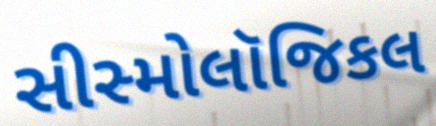
સીસ્મોલૉજિકલ